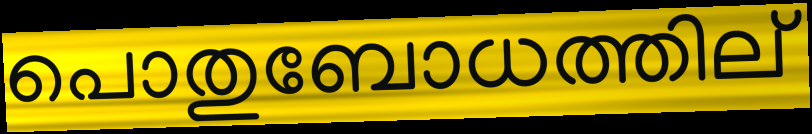
പൊതുബോധത്തില്